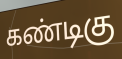
கண்டிகு